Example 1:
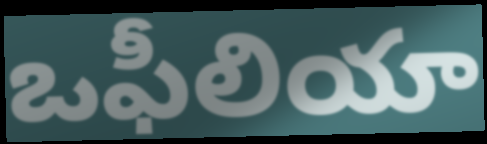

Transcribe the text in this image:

ఒఫీలియా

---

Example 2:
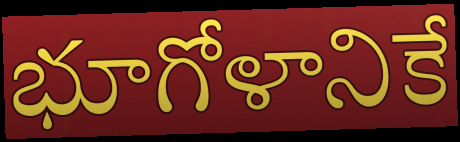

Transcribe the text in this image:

భూగోళానికే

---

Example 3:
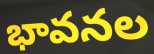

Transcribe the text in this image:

భావనల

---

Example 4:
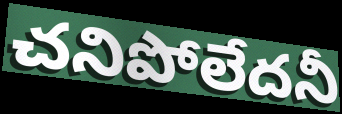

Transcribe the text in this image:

చనిపోలేదనీ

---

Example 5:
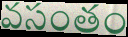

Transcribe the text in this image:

వసంతం